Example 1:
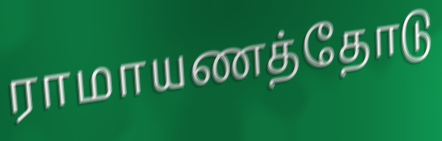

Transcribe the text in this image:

ராமாயணத்தோடு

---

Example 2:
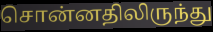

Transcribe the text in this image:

சொன்னதிலிருந்து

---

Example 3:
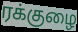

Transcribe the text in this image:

ரக்குழை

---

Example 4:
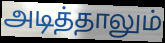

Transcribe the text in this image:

அடித்தாலும்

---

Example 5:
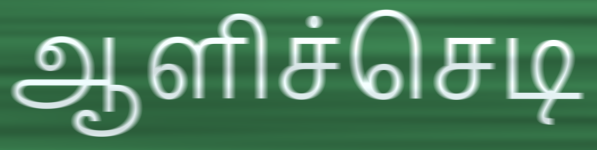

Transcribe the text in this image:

ஆளிச்செடி